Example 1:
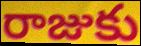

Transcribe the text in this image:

రాజుకు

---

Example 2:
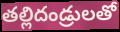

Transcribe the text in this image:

తల్లిదండ్రులతో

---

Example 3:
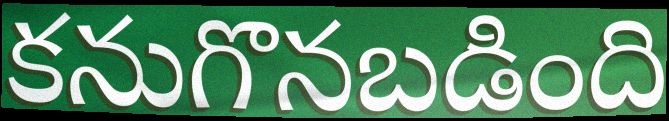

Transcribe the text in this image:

కనుగొనబడింది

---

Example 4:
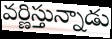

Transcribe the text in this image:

వర్ణిస్తున్నాడు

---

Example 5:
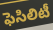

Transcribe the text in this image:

ఫెసిలిటీ